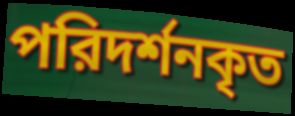
পরিদর্শনকৃত